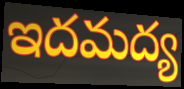
ఇదమద్య